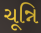
ચૂન્નિ